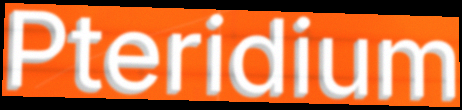
Pteridium